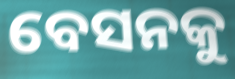
ବେସନକୁ